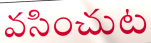
వసించుట